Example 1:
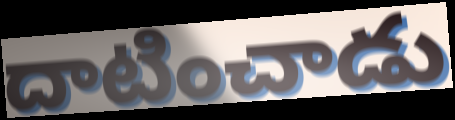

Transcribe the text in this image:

దాటించాడు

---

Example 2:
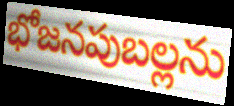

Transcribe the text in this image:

భోజనపుబల్లను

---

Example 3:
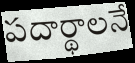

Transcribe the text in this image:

పదార్థాలనే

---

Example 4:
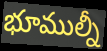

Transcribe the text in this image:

భూముల్నీ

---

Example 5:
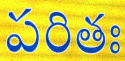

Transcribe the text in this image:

పరితః